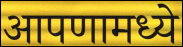
आपणामध्ये